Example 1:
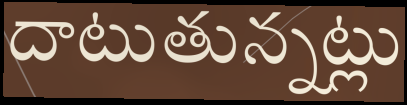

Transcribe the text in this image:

దాటుతున్నట్లు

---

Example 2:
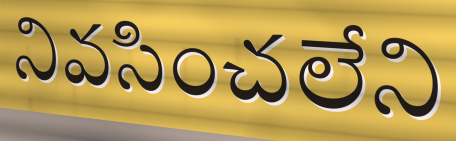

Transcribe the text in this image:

నివసించలేని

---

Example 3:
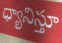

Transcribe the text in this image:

ధ్యానిస్తూ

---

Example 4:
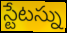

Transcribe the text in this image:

స్టేటస్ను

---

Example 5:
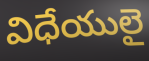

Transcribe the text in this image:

విధేయులై